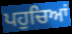
ਪਹੁਚਿਆਂ